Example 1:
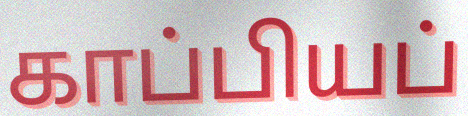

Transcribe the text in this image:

காப்பியப்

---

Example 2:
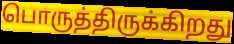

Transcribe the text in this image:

பொருத்திருக்கிறது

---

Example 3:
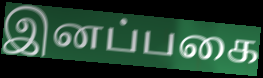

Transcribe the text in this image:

இனப்பகை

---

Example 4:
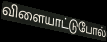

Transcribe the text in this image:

விளையாட்டுபோல்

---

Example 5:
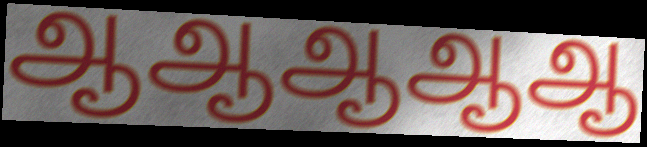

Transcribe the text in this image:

ஆஆஆஆஆ